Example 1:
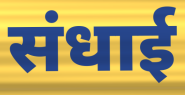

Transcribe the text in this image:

संधाई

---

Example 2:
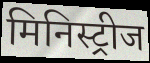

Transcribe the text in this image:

मिनिस्ट्रीज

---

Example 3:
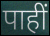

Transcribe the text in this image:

पाहीं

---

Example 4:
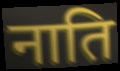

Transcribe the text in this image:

नाति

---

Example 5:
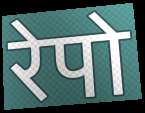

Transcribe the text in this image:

रेपो